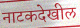
नाटकदेखील